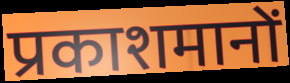
प्रकाशमानों